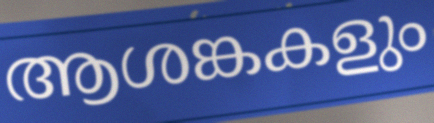
ആശങ്കകളും